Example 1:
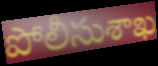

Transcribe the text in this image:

పోలీసుశాఖ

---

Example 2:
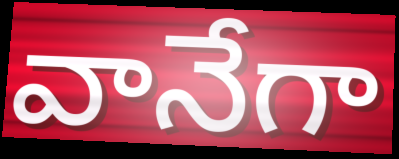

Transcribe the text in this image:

వానేగా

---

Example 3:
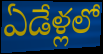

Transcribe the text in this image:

ఏడేళ్లలో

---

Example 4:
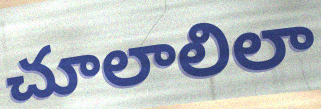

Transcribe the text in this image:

చూలాలిలా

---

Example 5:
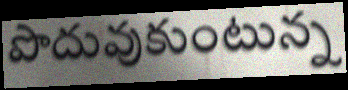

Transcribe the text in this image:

పొదువుకుంటున్న